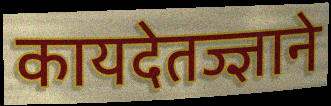
कायदेतज्ज्ञाने